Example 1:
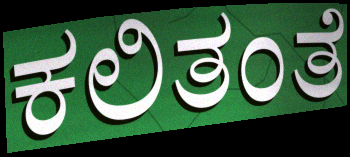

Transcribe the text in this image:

ಕಲಿತಂತೆ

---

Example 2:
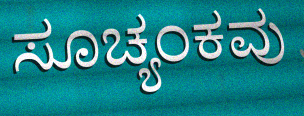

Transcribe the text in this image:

ಸೂಚ್ಯಂಕವು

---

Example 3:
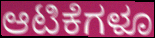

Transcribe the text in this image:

ಆಟಿಕೆಗಳೂ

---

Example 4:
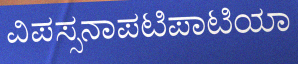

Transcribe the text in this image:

ವಿಪಸ್ಸನಾಪಟಿಪಾಟಿಯಾ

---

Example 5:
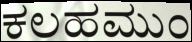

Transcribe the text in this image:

ಕಲಹಮುಂ